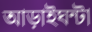
আড়াইঘন্টা